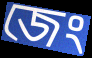
জেং